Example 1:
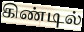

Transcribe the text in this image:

கிண்டில்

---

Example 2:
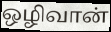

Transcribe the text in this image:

ஒழிவான்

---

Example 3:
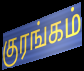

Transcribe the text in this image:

குரங்கம்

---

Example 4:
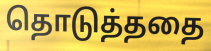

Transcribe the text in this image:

தொடுத்ததை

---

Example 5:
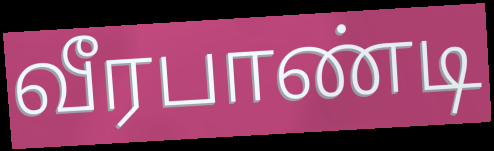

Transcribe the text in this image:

வீரபாண்டி